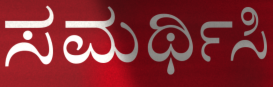
ಸಮರ್ಥಿಸಿ